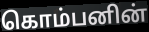
கொம்பனின்